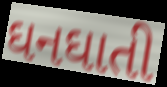
ઘનઘાતી